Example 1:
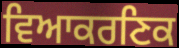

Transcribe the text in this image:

ਵਿਆਕਰਣਿਕ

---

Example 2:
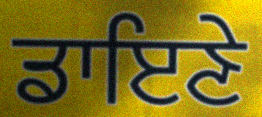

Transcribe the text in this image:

ਡਾਇਣੇ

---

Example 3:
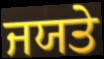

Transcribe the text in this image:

ਜਯਤੇ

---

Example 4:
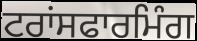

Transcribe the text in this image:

ਟਰਾਂਸਫਾਰਮਿੰਗ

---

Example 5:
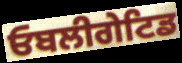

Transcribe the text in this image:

ਓਬਲੀਗੇਟਿਡ